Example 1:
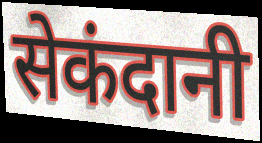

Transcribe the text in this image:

सेकंदानी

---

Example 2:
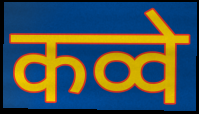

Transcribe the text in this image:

कव्वे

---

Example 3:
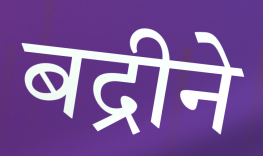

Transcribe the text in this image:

बद्रीने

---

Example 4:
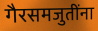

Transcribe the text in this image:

गैरसमजुतींना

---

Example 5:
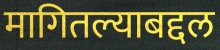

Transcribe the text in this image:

मागितल्याबद्दल